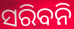
ସରିବନି